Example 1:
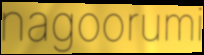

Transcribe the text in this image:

nagoorumi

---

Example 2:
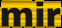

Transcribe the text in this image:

mir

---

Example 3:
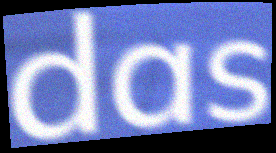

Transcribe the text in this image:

das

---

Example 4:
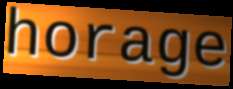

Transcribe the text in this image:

horage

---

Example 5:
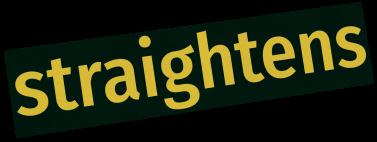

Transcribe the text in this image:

straightens